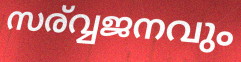
സര്വ്വജനവും